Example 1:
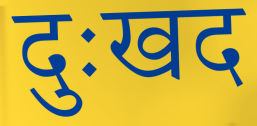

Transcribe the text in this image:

दुःखद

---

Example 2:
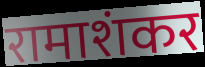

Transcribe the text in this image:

रामाशंकर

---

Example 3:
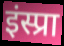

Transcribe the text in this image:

इंस्प्रा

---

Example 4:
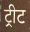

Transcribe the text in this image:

ट्रीट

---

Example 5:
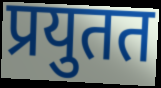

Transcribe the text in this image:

प्रयुतत